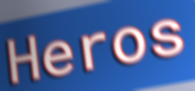
Heros